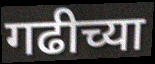
गढीच्या